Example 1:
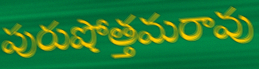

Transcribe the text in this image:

పురుషోత్తమరావు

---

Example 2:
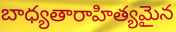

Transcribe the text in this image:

బాధ్యతారాహిత్యమైన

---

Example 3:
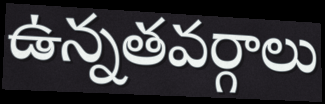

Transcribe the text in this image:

ఉన్నతవర్గాలు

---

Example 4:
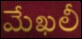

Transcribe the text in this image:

మేఖలీ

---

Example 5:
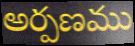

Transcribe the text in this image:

అర్పణము